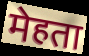
मेहता